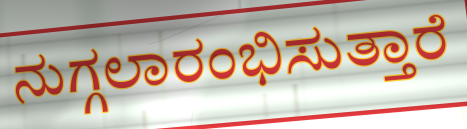
ನುಗ್ಗಲಾರಂಭಿಸುತ್ತಾರೆ